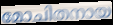
മോചിതനായ